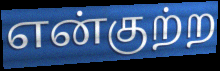
என்குற்ற